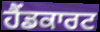
ਹੈਂਡਕਾਰਟ